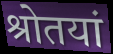
श्रोतयां